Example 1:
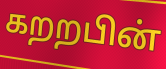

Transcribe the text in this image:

கறறபின்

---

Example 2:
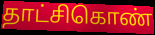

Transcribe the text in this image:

தாட்சிகொண்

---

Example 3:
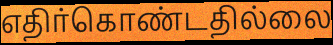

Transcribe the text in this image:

எதிர்கொண்டதில்லை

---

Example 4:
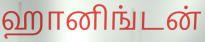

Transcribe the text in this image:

ஹானிங்டன்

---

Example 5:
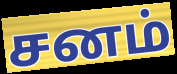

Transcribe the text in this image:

சனம்